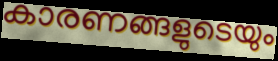
കാരണങ്ങളുടെയും